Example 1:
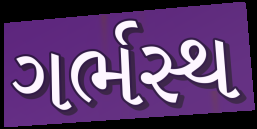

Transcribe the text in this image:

ગર્ભસ્થ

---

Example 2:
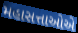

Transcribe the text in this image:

મહાસત્તાઓએ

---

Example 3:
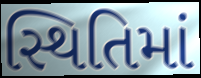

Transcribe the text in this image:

સ્થિતિમાં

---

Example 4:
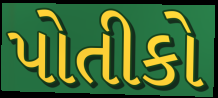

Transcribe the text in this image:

પોતીકો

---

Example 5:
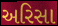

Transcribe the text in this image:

અરિસા